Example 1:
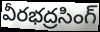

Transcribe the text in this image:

వీరభద్రసింగ్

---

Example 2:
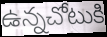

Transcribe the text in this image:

ఉన్నచోటుకి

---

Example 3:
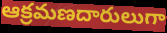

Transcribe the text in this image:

ఆక్రమణదారులుగా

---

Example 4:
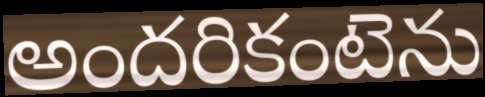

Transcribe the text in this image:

అందరికంటెను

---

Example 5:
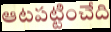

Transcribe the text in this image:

ఆటపట్టించేది